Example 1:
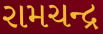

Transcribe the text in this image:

રામચન્દ્ર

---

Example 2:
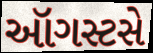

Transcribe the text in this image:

ઑગસ્ટસે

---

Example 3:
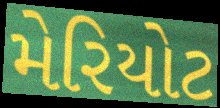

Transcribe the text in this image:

મેરિયોટ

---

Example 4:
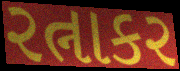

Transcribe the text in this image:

રત્નાકર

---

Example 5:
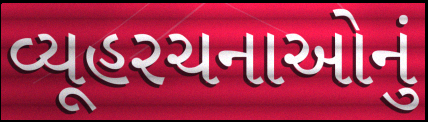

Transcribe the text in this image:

વ્યૂહરચનાઓનું